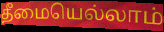
தீமையெல்லாம்